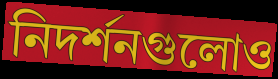
নিদর্শনগুলোও